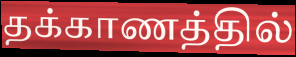
தக்காணத்தில்